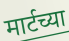
मार्टच्या